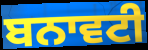
ਬਨਾਵਟੀ